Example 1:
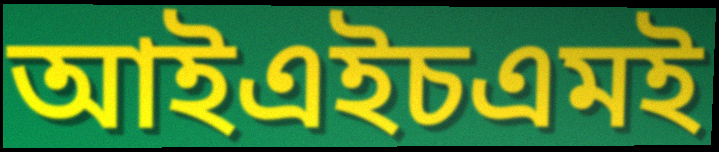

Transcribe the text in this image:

আইএইচএমই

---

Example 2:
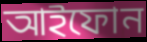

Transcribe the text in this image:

আইফোন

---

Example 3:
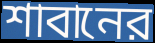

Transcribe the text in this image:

শাবানের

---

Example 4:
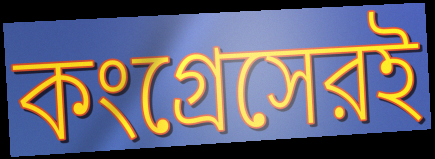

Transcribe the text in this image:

কংগ্রেসেরই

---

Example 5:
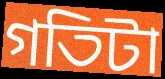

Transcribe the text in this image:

গতিটা